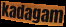
kadagam